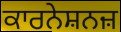
ਕਾਰਨੇਸ਼ਨਜ਼